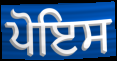
ਪੋਇਸ